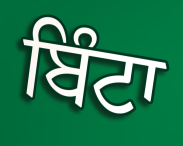
ਬਿੰਟਾ